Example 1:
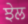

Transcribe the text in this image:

ਝੇਲ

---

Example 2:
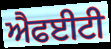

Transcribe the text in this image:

ਐਫਈਟੀ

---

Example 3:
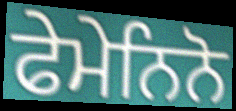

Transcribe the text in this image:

ਫੇਮੇਨਿਨੋ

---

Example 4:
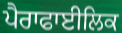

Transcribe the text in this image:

ਪੈਰਾਫਾਈਲਿਕ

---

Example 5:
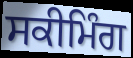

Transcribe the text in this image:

ਸਕੀਮਿੰਗ